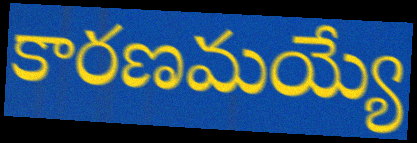
కారణమయ్యే